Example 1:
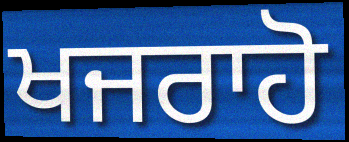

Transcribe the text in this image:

ਖਜਰਾਹੋ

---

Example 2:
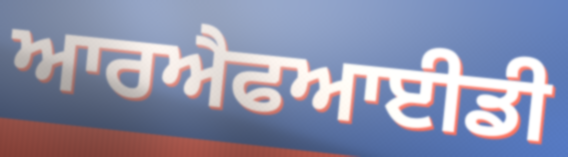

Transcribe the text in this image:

ਆਰਐਫਆਈਡੀ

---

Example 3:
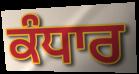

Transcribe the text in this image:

ਕੰਧਾਰ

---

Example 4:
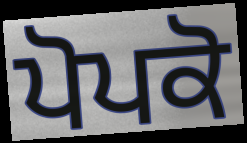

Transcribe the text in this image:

ਪੋਪਕੋ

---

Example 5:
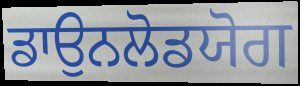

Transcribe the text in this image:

ਡਾਉਨਲੋਡਯੋਗ